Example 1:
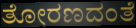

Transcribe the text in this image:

ತೋರಣದಂತೆ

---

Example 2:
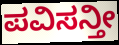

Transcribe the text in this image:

ಪವಿಸನ್ತೀ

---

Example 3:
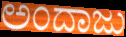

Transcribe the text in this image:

ಅಂದಾಜು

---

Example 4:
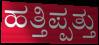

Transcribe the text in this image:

ಹತ್ತಿಪ್ಪತ್ತು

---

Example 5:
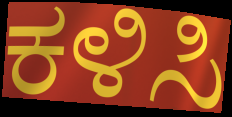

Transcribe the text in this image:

ಕಳಿಸಿ